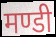
मण्डी